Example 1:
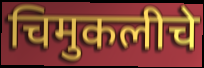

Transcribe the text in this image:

चिमुकलीचे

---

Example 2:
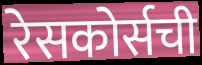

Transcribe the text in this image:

रेसकोर्सची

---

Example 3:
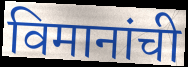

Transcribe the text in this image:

विमानांची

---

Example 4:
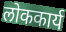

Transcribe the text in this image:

लोककार्य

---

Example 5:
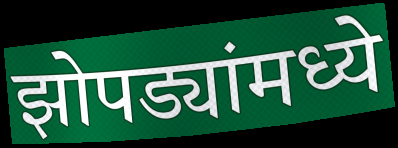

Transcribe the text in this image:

झोपड्यांमध्ये